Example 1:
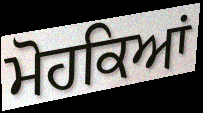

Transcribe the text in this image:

ਮੋਹਕਿਆਂ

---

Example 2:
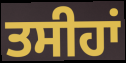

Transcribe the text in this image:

ਤਸੀਹਾਂ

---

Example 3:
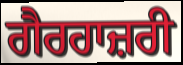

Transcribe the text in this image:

ਗੈਰਹਾਜ਼ਰੀ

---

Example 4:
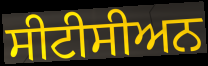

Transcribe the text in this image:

ਸੀਟੀਸੀਅਨ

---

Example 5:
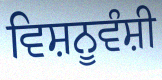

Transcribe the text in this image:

ਵਿਸ਼ਨੂਵੰਸ਼ੀ